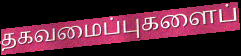
தகவமைப்புகளைப்